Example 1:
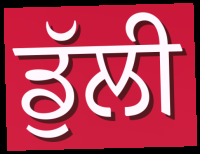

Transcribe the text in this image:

ਡੁੱਲੀ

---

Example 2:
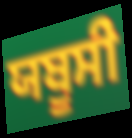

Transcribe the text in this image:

ਯਬੂਸੀ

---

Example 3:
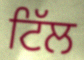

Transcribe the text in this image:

ਟਿੱਲ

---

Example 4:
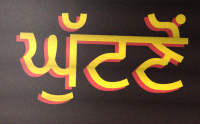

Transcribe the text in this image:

ਘੁੱਟਣੋਂ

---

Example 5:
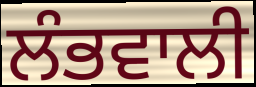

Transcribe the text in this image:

ਲੰਭਵਾਲੀ